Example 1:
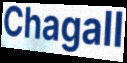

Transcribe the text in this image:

Chagall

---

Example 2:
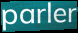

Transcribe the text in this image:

parler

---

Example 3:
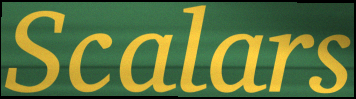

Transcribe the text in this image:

Scalars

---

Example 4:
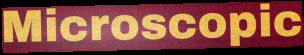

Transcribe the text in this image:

Microscopic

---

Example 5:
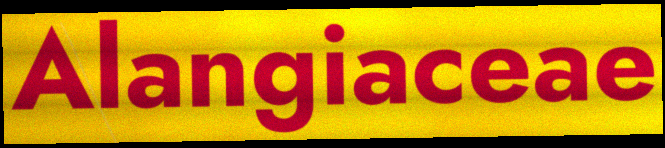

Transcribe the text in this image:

Alangiaceae